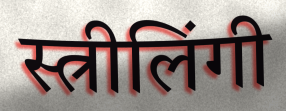
स्त्रीलिंगी